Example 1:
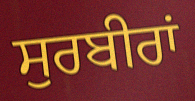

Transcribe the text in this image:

ਸੁਰਬੀਰਾਂ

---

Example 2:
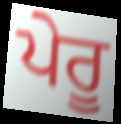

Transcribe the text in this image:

ਪੇਰੂ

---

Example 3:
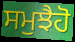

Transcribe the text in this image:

ਸਮੁਝੈਹੋ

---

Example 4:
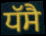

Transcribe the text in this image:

ਧੱਸੈ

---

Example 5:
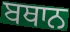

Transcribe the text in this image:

ਬਥਾਨ